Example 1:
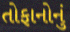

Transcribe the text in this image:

તોફાનોનું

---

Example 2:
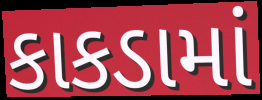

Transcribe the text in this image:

કાકડામાં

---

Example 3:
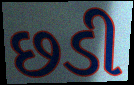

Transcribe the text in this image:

છડી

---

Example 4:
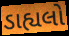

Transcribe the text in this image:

ડાહ્યલો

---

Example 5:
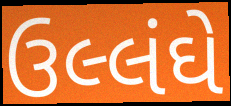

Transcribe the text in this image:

ઉલ્લંઘે